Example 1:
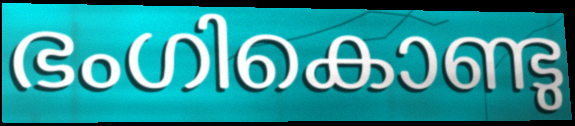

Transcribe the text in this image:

ഭംഗികൊണ്ടു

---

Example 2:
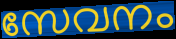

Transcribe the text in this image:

സേവനം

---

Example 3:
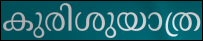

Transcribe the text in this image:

കുരിശുയാത്ര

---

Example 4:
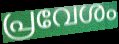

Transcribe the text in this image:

പ്രവേശം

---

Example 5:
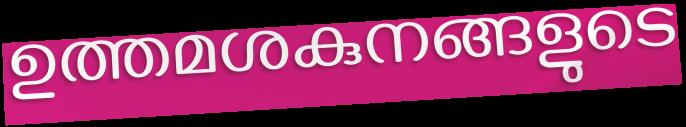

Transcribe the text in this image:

ഉത്തമശകുനങ്ങളുടെ